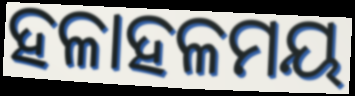
ହଳାହଳମୟ